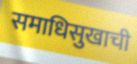
समाधिसुखाची